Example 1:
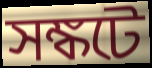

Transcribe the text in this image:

সঙ্কটে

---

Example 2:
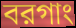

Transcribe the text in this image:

বরগাং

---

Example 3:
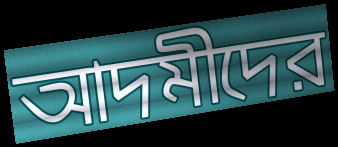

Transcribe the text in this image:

আদমীদের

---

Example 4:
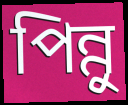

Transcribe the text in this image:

পিন্নু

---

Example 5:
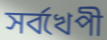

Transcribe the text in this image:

সর্বখেপী